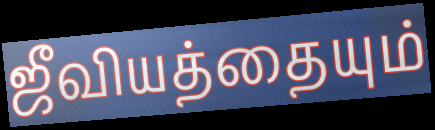
ஜீவியத்தையும்